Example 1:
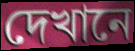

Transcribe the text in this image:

দেখানে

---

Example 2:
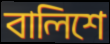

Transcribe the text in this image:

বালিশে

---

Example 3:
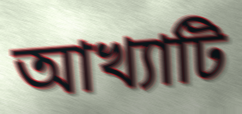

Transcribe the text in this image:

আখ্যাটি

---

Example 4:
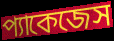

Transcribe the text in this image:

প্যাকেজেস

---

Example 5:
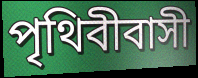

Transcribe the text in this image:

পৃথিবীবাসী